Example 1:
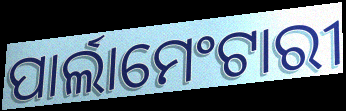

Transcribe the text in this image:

ପାର୍ଲାମେଂଟାରୀ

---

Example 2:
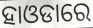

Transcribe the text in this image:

ହାଓଡାରେ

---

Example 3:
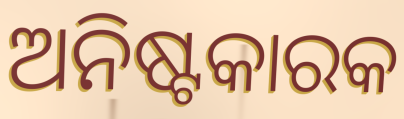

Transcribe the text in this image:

ଅନିଷ୍ଟକାରକ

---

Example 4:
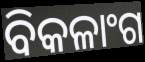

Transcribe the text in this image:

ବିକଳାଂଗ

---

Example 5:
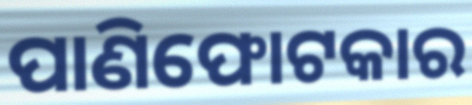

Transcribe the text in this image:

ପାଣିଫୋଟକାର